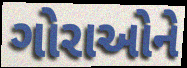
ગોરાઓને